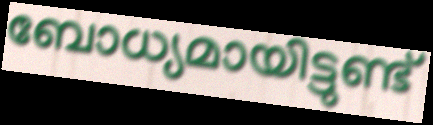
ബോധ്യമായിട്ടുണ്ട്